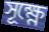
সূক্ষ্ণে